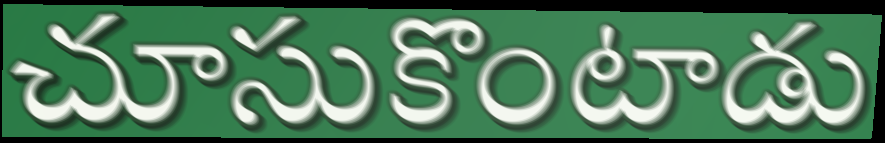
చూసుకొంటాడు